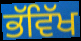
ਭੱਵਿੱਖ